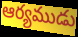
ఆర్యముడు